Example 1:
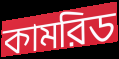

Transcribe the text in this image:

কামরিড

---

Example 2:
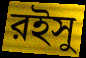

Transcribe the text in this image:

রইসু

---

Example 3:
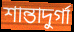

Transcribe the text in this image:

শান্তাদুর্গা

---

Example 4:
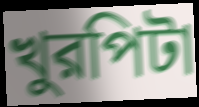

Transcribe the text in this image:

খুরপিটা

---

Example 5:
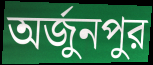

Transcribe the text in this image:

অর্জুনপুর